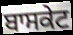
ਬਾਸਕੇਟ